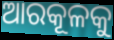
ଆରକୂଳକୁ